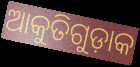
ଆକୁତିଗୁଡ଼ାକ